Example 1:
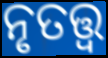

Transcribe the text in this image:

ନୃତତ୍ତ୍ଵ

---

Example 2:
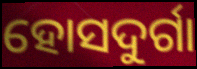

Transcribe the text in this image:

ହୋସଦୁର୍ଗା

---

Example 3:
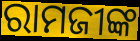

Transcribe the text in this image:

ରାମଜୀଙ୍କ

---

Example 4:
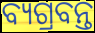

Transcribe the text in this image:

ବ୍ୟଗ୍ରବନ୍ତ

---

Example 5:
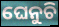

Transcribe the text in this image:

ଘେନୁଚି